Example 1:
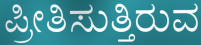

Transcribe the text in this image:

ಪ್ರೀತಿಸುತ್ತಿರುವ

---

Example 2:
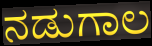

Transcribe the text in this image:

ನಡುಗಾಲ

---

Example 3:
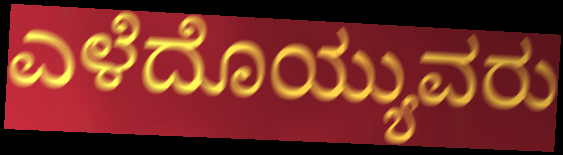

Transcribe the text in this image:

ಎಳೆದೊಯ್ಯುವರು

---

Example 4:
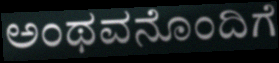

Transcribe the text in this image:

ಅಂಥವನೊಂದಿಗೆ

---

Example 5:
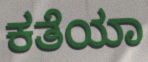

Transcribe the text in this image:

ಕತೆಯಾ